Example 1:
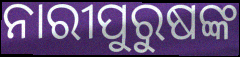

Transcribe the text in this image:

ନାରୀପୁରୁଷଙ୍କ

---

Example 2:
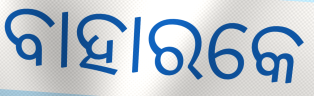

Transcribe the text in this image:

ବାହାରକେ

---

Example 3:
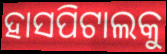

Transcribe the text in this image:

ହାସପିଟାଲକୁ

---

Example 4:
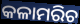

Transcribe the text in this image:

କଳାମରିଚ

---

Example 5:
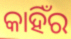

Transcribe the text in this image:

କାହିଁର